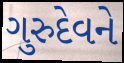
ગુરુદેવને